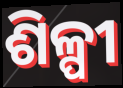
ଶିଳ୍ପୀ